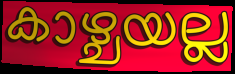
കാഴ്ചയല്ല